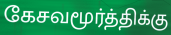
கேசவமூர்த்திக்கு